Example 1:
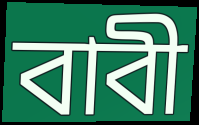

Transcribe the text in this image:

বাবী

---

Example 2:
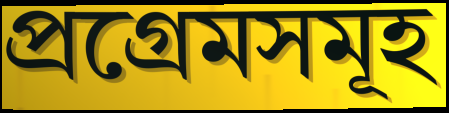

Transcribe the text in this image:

প্ৰগ্ৰেমসমূহ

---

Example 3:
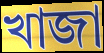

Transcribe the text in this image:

খাজা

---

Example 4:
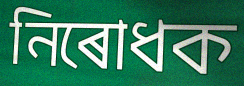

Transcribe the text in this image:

নিৰোধক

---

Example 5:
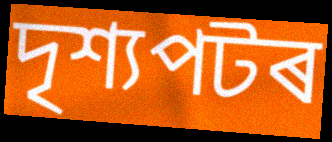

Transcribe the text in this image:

দৃশ্যপটৰ